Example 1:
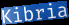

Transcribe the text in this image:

Kibria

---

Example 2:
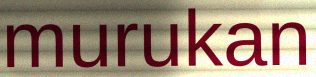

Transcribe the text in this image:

murukan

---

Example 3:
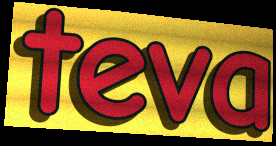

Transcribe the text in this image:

teva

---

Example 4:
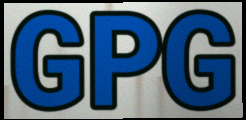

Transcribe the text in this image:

GPG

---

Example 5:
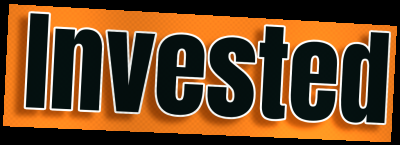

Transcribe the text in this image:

Invested